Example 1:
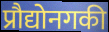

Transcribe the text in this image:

प्रौद्योनगकी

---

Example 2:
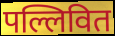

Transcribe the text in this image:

पल्लिवित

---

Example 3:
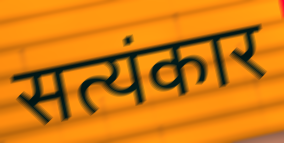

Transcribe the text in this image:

सत्यंकार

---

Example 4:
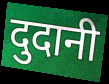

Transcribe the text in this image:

दुदानी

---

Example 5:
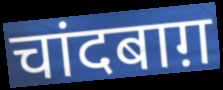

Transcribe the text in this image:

चांदबाग़